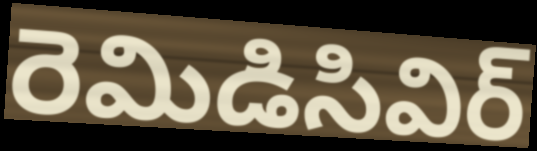
రెమిడిసివిర్